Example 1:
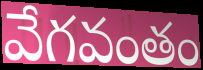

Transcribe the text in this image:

వేగవంతం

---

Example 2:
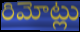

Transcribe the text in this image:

రిమోట్లు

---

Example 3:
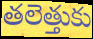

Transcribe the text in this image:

తలెత్తుకు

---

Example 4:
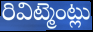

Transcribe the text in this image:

రివిట్మెంట్లు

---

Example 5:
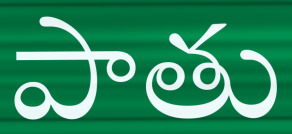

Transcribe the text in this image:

పాతు